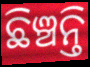
ଛିଞ୍ଚନ୍ତି